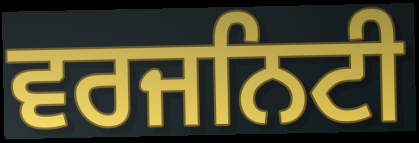
ਵਰਜਨਿਟੀ